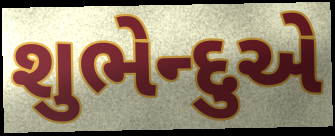
શુભેન્દુએ